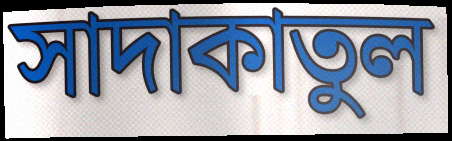
সাদাকাতুল